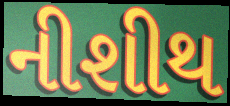
નીશીથ